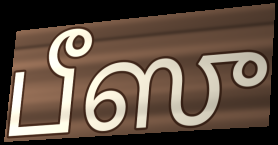
பீஸு